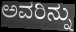
ಅವರಿನ್ನು